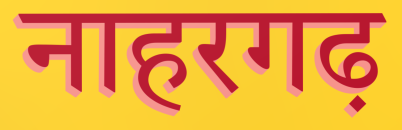
नाहरगढ़